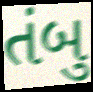
તંબુ